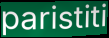
paristiti